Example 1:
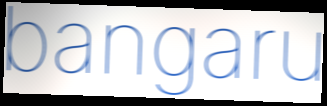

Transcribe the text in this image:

bangaru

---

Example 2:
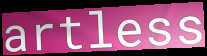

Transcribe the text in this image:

artless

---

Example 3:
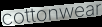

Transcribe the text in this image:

cottonwear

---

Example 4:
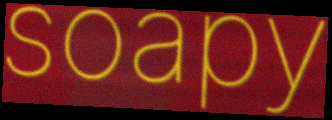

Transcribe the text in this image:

soapy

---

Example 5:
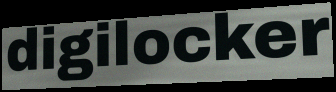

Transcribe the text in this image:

digilocker